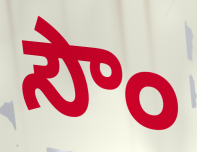
సౌం